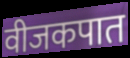
वीजकपात